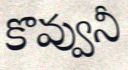
కొవ్వునీ